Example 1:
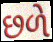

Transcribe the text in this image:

છળે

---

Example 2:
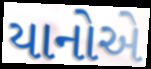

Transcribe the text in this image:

યાનોએ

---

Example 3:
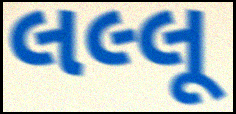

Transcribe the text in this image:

લલ્લૂ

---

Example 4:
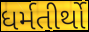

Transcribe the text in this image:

ધર્મતીર્થો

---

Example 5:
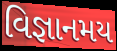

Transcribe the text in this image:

વિજ્ઞાનમય